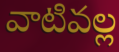
వాటివల్ల